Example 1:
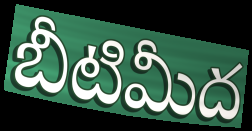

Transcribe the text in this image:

బీటిమీద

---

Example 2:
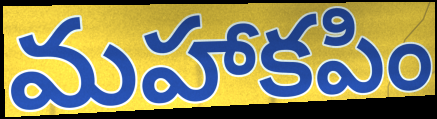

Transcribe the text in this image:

మహాకపిం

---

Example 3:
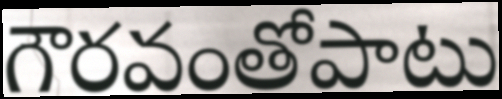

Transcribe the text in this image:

గౌరవంతోపాటు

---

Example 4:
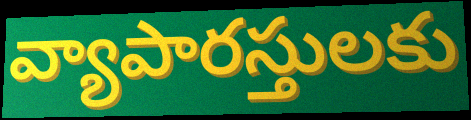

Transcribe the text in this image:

వ్యాపారస్తులకు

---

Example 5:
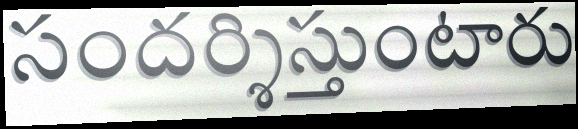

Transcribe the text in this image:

సందర్శిస్తుంటారు